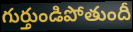
గుర్తుండిపోతుందీ